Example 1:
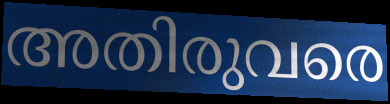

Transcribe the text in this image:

അതിരുവരെ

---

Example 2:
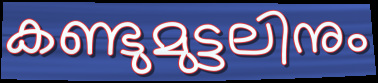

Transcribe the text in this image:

കണ്ടുമുട്ടലിനും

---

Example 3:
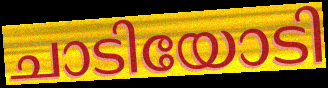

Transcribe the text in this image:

ചാടിയോടി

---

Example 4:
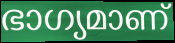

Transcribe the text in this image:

ഭാഗ്യമാണ്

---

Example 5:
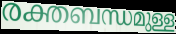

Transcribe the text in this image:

രക്തബന്ധമുള്ള